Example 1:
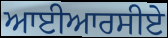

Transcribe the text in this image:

ਆਈਆਰਸੀਏ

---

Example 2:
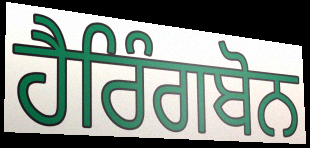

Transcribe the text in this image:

ਹੈਰਿੰਗਬੋਨ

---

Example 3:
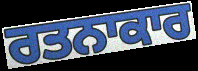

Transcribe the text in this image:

ਰਤਨਾਕਾਰ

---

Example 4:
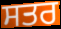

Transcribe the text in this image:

ਸਤਰ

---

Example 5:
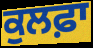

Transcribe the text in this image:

ਕੁਲਫ਼ਾ